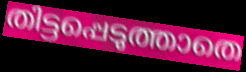
തിട്ടപ്പെടുത്താതെ